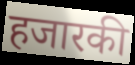
हजारकी